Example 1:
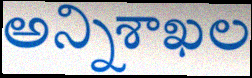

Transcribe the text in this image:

అన్నిశాఖల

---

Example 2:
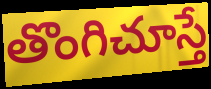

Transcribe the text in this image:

తొంగిచూస్తే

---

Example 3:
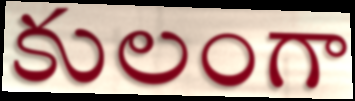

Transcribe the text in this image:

కులంగా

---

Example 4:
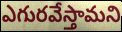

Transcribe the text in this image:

ఎగురవేస్తామని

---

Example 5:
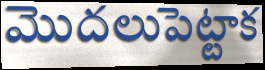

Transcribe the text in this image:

మొదలుపెట్టాక